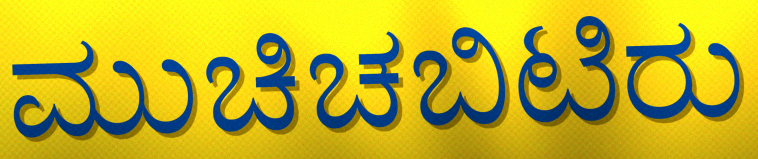
ಮುಚಿಚಬಿಟಿರು